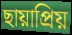
ছায়াপ্রিয়